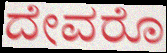
ದೇವರೊ